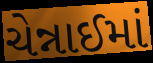
ચેન્નાઈમાં